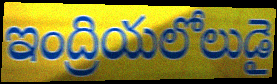
ఇంద్రియలోలుడై